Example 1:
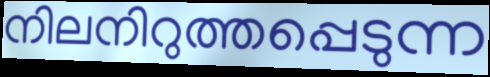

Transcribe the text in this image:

നിലനിറുത്തപ്പെടുന്ന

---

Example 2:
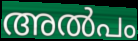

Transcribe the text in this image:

അൽപം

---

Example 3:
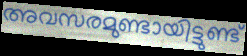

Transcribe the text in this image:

അവസരമുണ്ടായിട്ടുണ്ട്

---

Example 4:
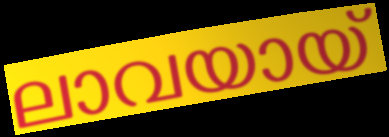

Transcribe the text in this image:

ലാവയായ്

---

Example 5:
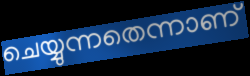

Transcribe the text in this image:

ചെയ്യുന്നതെന്നാണ്